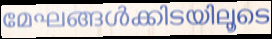
മേഘങ്ങൾക്കിടയിലൂടെ